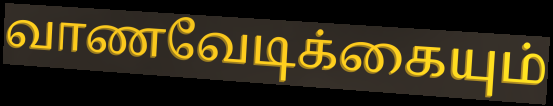
வாணவேடிக்கையும்